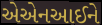
એએનઆઈને